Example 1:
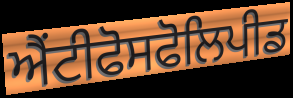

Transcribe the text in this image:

ਐਂਟੀਫੋਸਫੋਲਿਪੀਡ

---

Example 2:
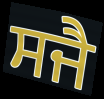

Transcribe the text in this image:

ਸਜੈ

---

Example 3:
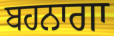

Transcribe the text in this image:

ਬਹਨਾਗਾ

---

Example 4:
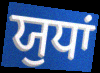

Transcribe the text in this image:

ਯੁਧਾਂ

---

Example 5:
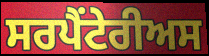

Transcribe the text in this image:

ਸਰਪੈਂਟੇਰੀਅਸ